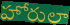
హోరులా